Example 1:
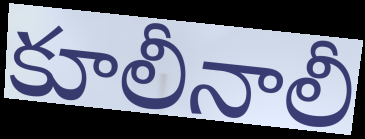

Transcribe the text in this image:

కూలీనాలీ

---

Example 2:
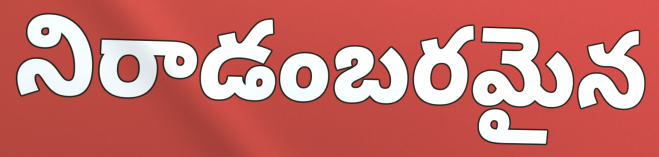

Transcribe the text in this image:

నిరాడంబరమైన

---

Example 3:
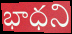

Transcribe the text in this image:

భాధని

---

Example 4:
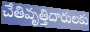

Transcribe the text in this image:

చేతివృత్తిదారులకు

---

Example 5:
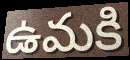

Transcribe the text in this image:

ఉమకి